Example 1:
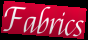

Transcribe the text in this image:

Fabrics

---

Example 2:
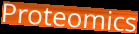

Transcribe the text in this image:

Proteomics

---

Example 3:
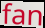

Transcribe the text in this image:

fan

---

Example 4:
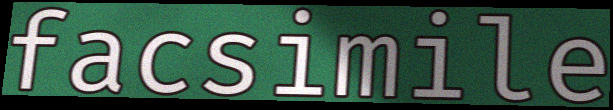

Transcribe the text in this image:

facsimile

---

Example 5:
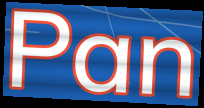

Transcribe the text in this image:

Pan